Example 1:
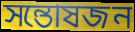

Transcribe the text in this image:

সন্তোষজন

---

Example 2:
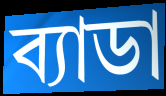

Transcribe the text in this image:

ব্যাডা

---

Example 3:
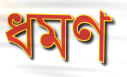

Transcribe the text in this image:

ধমণ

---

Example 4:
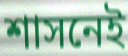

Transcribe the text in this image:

শাসনেই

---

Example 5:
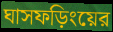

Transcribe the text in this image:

ঘাসফড়িংয়ের